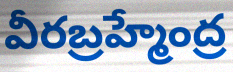
వీరబ్రహ్మేంద్ర